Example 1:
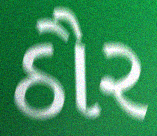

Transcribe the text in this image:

ઠૌર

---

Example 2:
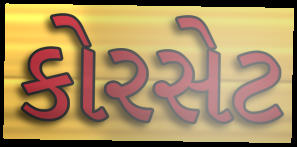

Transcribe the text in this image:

કોરસેટ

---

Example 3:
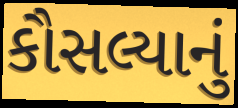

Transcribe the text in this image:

કૌસલ્યાનું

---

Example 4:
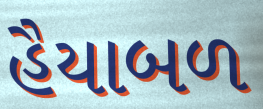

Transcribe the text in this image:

હૈયાબળ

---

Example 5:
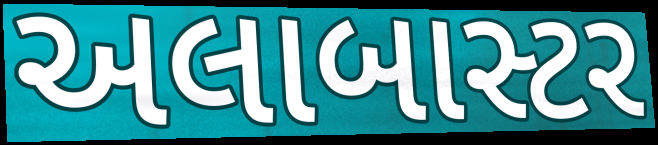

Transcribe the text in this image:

અલાબાસ્ટર